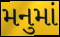
મનુમાં